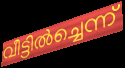
വീട്ടിൽച്ചെന്ന്